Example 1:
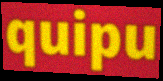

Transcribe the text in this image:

quipu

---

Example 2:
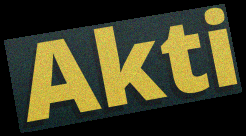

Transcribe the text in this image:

Akti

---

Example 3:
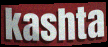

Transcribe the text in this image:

kashta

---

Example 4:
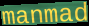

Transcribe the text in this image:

manmad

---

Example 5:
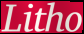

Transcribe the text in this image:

Litho